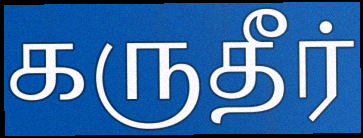
கருதீர்